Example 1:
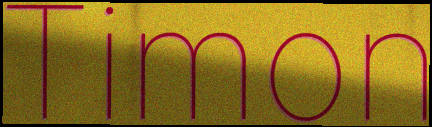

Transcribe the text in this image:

Timon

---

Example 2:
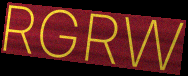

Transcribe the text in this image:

RGRW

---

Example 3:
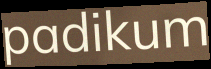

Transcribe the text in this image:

padikum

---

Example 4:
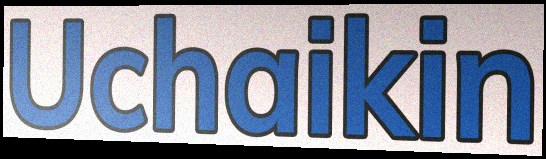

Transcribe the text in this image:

Uchaikin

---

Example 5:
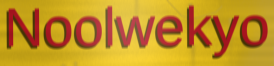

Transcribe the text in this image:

Noolwekyo